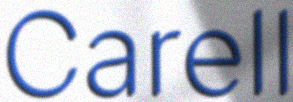
Carell